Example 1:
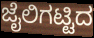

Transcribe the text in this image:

ಜೈಲಿಗಟ್ಟಿದ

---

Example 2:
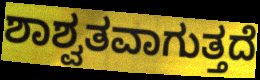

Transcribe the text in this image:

ಶಾಶ್ವತವಾಗುತ್ತದೆ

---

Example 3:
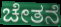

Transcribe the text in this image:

ಚೇತನೆ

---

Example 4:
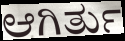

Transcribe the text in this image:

ಆಗಿರ್ತು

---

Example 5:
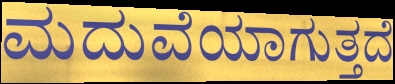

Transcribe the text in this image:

ಮದುವೆಯಾಗುತ್ತದೆ